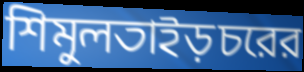
শিমুলতাইড়চরের